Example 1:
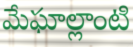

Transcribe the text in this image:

మేఘాల్లాంటి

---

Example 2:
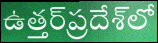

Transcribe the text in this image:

ఉత్తర్‌ప్రదేశ్‌లో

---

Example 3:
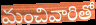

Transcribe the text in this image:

మంచివారితో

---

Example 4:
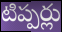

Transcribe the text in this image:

టిప్పర్లు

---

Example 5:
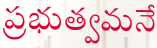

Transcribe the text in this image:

ప్రభుత్వమనే